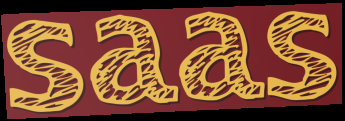
saas